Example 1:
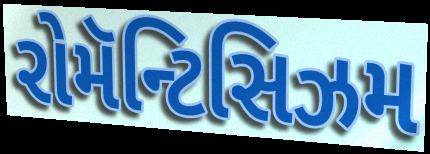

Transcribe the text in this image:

રોમૅન્ટિસિઝમ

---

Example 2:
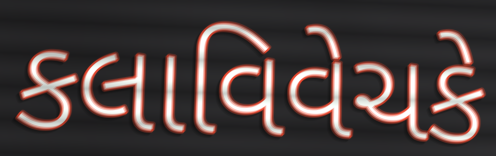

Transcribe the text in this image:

કલાવિવેચકે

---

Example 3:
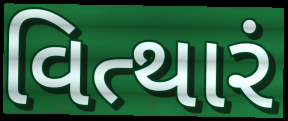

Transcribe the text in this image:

વિત્થારં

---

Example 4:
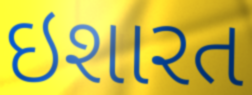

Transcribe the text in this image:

ઇશારત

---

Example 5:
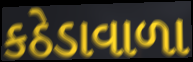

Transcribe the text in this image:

કઠેડાવાળા